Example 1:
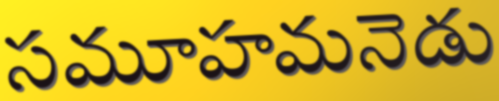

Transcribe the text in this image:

సమూహమనెడు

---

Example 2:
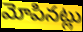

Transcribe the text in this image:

మోపినట్లు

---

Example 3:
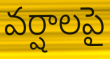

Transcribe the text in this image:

వర్షాలపై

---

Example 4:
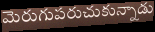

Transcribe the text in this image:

మెరుగుపరుచుకున్నాడు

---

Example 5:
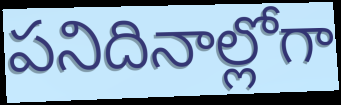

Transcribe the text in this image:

పనిదినాల్లోగా